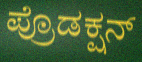
ಪ್ರೊಡಕ್ಷನ್